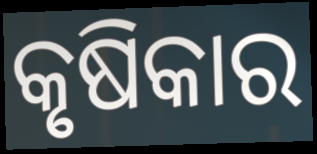
କୃଷିକାର